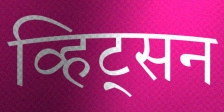
व्हिट्सन